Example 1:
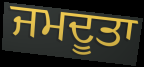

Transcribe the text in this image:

ਜਮਦੂਤਾ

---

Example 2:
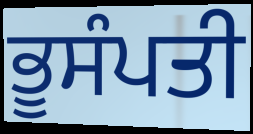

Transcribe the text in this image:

ਭੂਸੰਪਤੀ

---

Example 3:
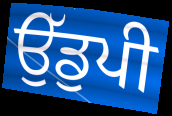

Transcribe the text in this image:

ਉੱਡੁਪੀ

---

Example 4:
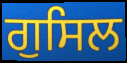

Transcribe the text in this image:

ਗੁਸਿਲ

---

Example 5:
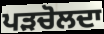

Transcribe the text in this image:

ਪੜਚੋਲਦਾ